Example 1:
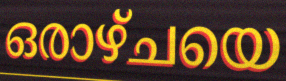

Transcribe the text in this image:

ഒരാഴ്ചയെ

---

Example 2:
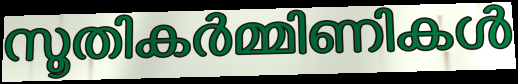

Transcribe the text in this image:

സൂതികർമ്മിണികൾ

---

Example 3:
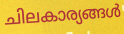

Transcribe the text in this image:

ചിലകാര്യങ്ങൾ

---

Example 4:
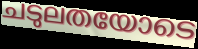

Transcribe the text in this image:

ചടുലതയോടെ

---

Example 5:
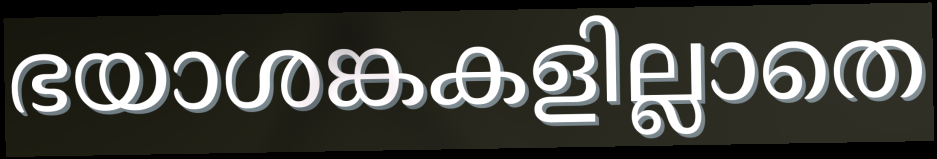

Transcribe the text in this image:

ഭയാശങ്കകളില്ലാതെ